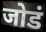
जोडं